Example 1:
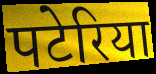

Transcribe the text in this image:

पटेरिया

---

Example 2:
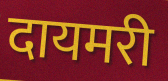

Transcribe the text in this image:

दायमरी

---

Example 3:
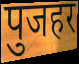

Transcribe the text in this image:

पुजहर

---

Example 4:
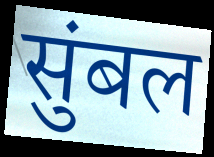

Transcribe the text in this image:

सुंबल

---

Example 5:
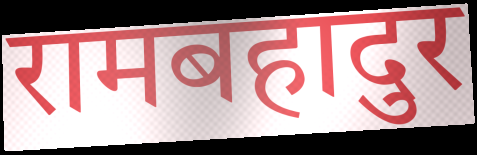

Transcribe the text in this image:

रामबहादुर